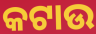
କଟାଉ